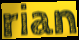
rian